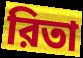
রিতা